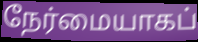
நேர்மையாகப்